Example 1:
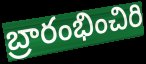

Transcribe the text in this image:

బ్రారంభించిరి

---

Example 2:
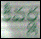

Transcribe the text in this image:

కీవర్డ్ల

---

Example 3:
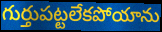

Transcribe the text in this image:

గుర్తుపట్టలేకపోయాను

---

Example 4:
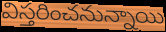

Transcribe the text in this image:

విస్తరించనున్నాయి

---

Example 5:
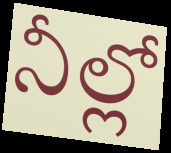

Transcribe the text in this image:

నీల్లో